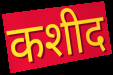
कशीद